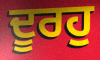
ਦੂਰਹੁ